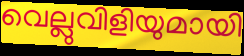
വെല്ലുവിളിയുമായി